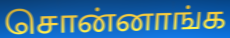
சொன்னாங்க